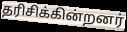
தரிசிக்கின்றனர்